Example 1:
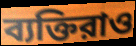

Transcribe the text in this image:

ব্যক্তিরাও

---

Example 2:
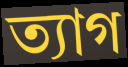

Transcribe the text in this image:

ত্যাগ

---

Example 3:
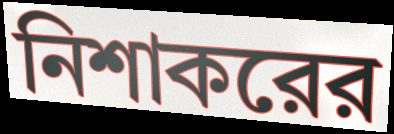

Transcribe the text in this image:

নিশাকরের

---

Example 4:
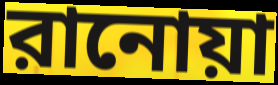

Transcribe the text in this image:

রানোয়া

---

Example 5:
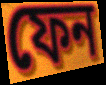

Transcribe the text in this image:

ফেন